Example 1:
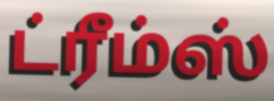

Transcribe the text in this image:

ட்ரீம்ஸ்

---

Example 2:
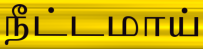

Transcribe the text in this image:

நீட்டமாய்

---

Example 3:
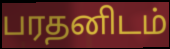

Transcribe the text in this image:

பரதனிடம்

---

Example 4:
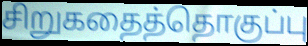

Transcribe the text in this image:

சிறுகதைத்தொகுப்பு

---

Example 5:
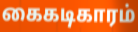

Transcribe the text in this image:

கைகடிகாரம்